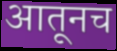
आतूनच